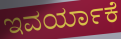
ಇವರ್ಯಾಕೆ